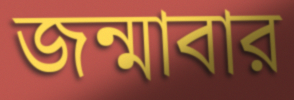
জন্মাবার